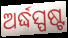
ଅର୍ଦ୍ଧସ୍ପଷ୍ଟ